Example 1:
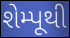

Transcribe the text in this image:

શેમ્પૂથી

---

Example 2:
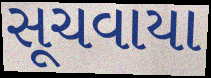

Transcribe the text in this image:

સૂચવાયા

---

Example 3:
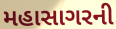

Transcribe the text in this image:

મહાસાગરની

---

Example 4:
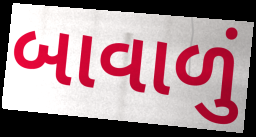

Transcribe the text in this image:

બાવાળું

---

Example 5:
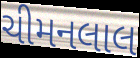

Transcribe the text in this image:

ચીમનલાલ